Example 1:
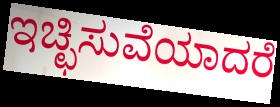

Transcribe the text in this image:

ಇಚ್ಛಿಸುವೆಯಾದರೆ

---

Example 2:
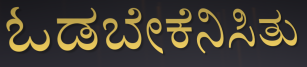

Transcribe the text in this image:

ಓಡಬೇಕೆನಿಸಿತು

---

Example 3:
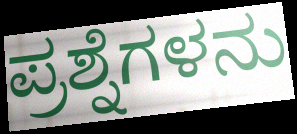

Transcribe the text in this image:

ಪ್ರಶ್ನೆಗಳನು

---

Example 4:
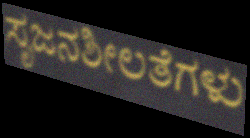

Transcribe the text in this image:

ಸೃಜನಶೀಲತೆಗಳು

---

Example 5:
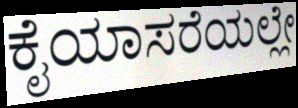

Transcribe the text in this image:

ಕೈಯಾಸರೆಯಲ್ಲೇ